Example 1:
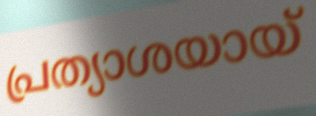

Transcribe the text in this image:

പ്രത്യാശയായ്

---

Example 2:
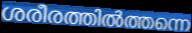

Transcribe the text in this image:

ശരീരത്തിൽത്തന്നെ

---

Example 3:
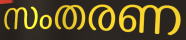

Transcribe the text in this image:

സംതരണ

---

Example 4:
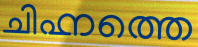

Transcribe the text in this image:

ചിഹ്നത്തെ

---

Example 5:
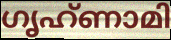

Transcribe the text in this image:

ഗൃഹ്ണാമി